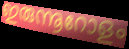
ഇരുന്നൂറോളം